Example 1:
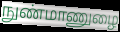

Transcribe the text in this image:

நுண்மாணுழை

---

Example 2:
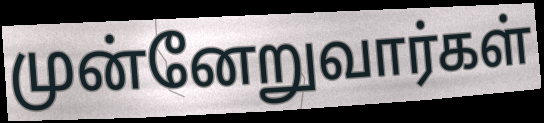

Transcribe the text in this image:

முன்னேறுவார்கள்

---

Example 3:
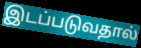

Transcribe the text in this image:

இடப்படுவதால்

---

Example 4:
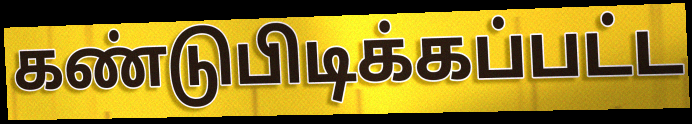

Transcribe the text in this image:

கண்டுபிடிக்கப்பட்ட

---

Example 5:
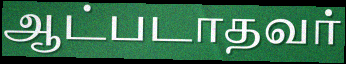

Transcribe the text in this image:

ஆட்படாதவர்